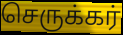
செருக்கர்